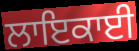
ਲਾਇਕਾਈ